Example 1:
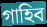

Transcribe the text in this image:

গাহিব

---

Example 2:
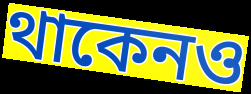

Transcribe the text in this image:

থাকেনও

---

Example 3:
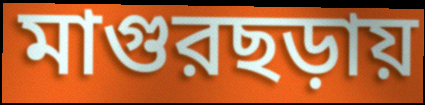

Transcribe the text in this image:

মাগুরছড়ায়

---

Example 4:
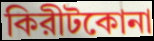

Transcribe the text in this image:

কিরীটকোনা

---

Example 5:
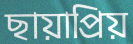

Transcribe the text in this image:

ছায়াপ্রিয়